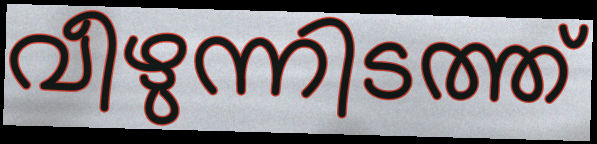
വീഴുന്നിടത്ത്